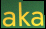
aka